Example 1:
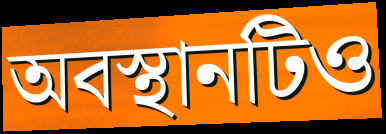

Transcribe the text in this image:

অবস্থানটিও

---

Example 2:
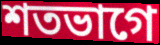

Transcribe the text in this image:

শতভাগে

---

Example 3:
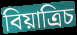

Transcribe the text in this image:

বিয়াত্রিচ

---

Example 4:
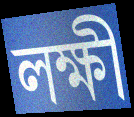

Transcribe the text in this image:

লক্ষী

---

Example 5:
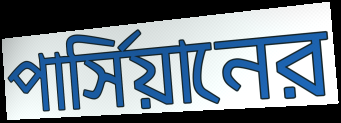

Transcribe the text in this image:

পার্সিয়ানের